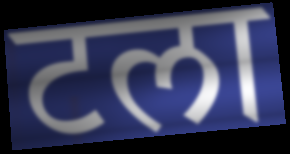
टला